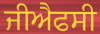
ਜੀਐਫਸੀ